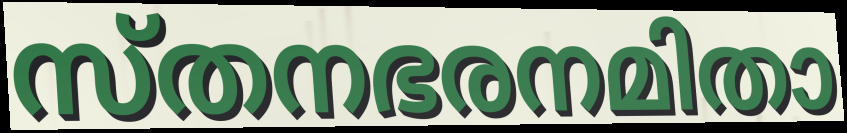
സ്തനഭരനമിതാ